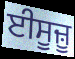
ਈਸੂਜ਼ੂ